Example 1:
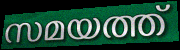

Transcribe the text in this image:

സമയത്ത്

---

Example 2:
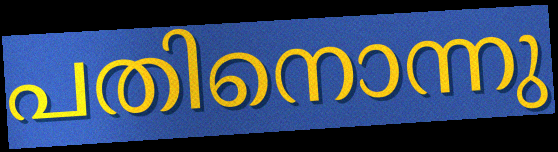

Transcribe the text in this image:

പതിനൊന്നു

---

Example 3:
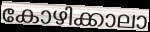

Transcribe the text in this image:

കോഴിക്കാലാ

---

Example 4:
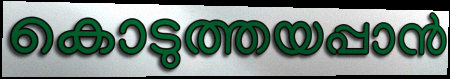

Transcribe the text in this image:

കൊടുത്തയപ്പാൻ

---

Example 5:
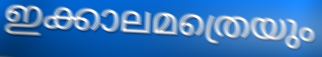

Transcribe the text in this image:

ഇക്കാലമത്രെയും